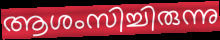
ആശംസിച്ചിരുന്നു